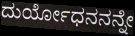
ದುರ್ಯೋಧನನನ್ನೇ